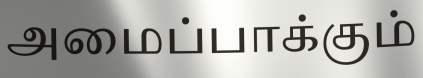
அமைப்பாக்கும்